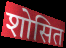
शोसित